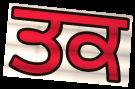
ਤਕ